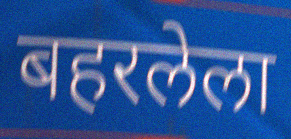
बहरलेला